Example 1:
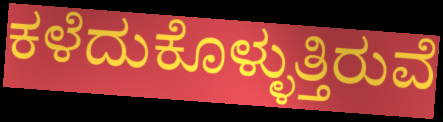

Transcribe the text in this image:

ಕಳೆದುಕೊಳ್ಳುತ್ತಿರುವೆ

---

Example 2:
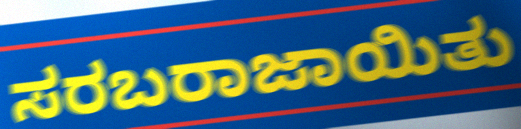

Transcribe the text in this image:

ಸರಬರಾಜಾಯಿತು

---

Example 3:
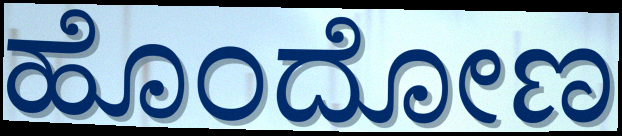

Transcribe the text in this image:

ಹೊಂದೋಣ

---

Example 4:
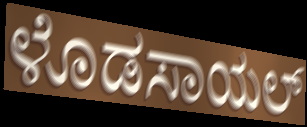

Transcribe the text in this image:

ಳೊಡಸಾಯಲ್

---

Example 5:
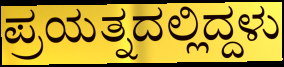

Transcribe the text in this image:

ಪ್ರಯತ್ನದಲ್ಲಿದ್ದಳು